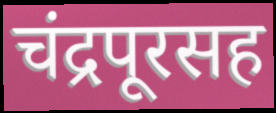
चंद्रपूरसह